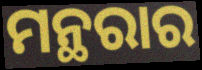
ମନ୍ଥରାର